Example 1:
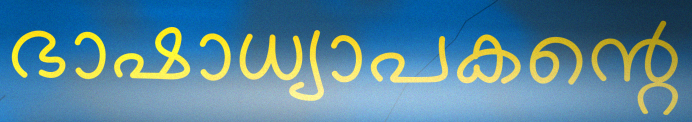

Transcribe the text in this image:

ഭാഷാധ്യാപകന്റെ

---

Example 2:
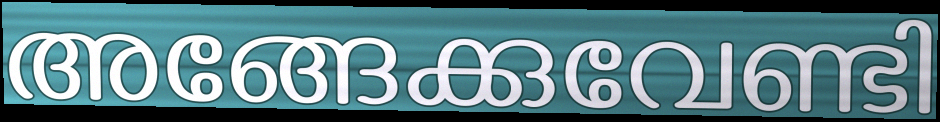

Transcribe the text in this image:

അങ്ങേക്കുവേണ്ടി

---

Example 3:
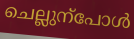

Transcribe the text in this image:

ചെല്ലുന്പോൾ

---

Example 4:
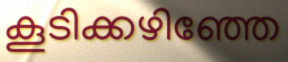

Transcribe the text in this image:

കൂടിക്കഴിഞ്ഞേ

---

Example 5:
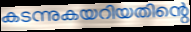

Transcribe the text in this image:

കടന്നുകയറിയതിന്റെ